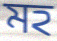
মহ